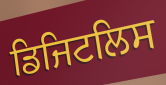
ਡਿਜਿਟਲਿਸ